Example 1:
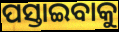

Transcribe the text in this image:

ପସ୍ତାଇବାକୁ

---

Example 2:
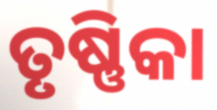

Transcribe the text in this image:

ତୃଷ୍ଣିକା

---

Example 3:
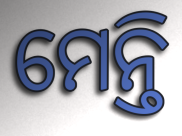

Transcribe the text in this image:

ମେନ୍ତି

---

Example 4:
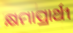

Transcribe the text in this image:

କ୍ଷମାପ୍ରାର୍ଥୀ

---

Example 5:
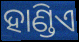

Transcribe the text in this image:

ହାଣ୍ଡିଏ